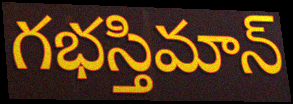
గభస్తిమాన్